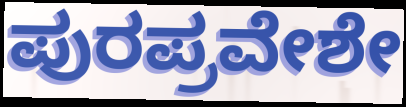
ಪುರಪ್ರವೇಶೇ